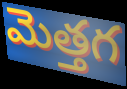
మెత్తగ